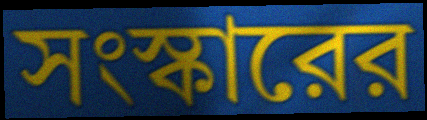
সংস্কারের